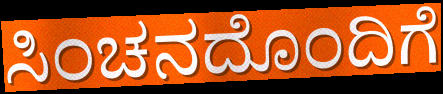
ಸಿಂಚನದೊಂದಿಗೆ